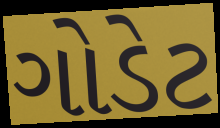
ગોડેટ